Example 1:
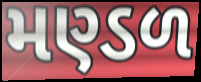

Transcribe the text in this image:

મણ્ડળ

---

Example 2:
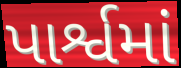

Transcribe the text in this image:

પાર્શ્વમાં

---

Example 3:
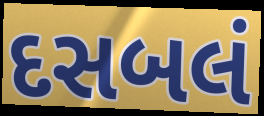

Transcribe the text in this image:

દસબલં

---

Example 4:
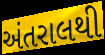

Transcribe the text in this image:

અંતરાલથી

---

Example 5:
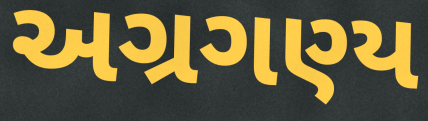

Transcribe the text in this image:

અગ્રગણ્ય